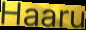
Haaru